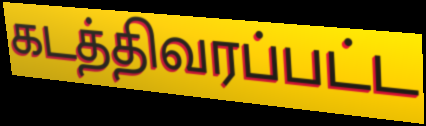
கடத்திவரப்பட்ட